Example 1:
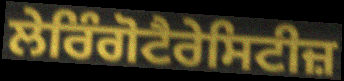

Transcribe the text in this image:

ਲੇਰਿੰਗੋਟੈਰੇਸਿਟੀਜ਼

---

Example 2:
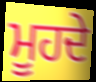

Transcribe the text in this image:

ਮੂਹਦੇ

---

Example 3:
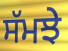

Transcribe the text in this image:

ਸੱਮਝੇ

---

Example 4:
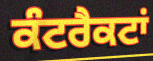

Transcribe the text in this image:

ਕੰਟਰੈਕਟਾਂ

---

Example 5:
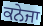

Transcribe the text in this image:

ਕਨੇਜਾ